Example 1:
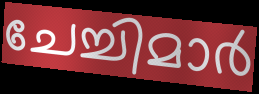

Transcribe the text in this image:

ചേച്ചിമാർ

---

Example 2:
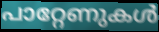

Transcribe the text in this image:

പാറ്റേണുകൾ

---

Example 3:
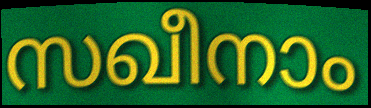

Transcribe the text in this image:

സഖീനാം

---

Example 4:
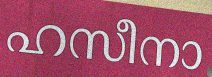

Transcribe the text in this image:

ഹസീനാ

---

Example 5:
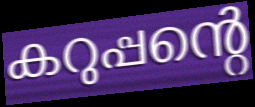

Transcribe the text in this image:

കറുപ്പന്റെ